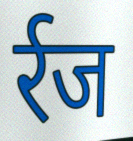
र्रज